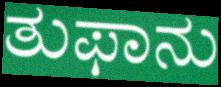
ತುಫಾನು